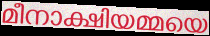
മീനാക്ഷിയമ്മയെ